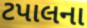
ટપાલના